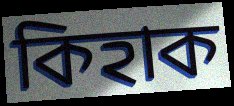
কিহাক